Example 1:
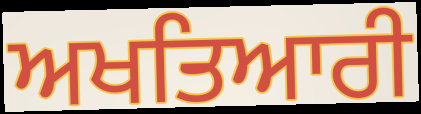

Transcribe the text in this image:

ਅਖਤਿਆਰੀ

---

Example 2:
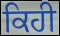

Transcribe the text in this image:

ਕਿਹੀ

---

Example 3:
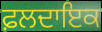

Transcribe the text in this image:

ਫ਼ਲਦਾਇਕ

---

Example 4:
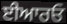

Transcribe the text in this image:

ਈਆਰਓ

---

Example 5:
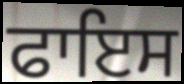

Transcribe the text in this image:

ਫਾਇਸ